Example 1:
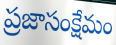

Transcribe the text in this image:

ప్రజాసంక్షేమం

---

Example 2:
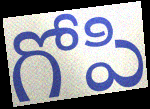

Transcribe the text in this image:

గోపి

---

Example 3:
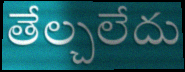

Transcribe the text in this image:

తేల్చలేదు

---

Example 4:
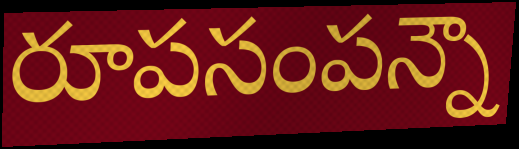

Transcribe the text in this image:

రూపసంపన్నౌ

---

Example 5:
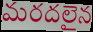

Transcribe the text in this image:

మరదలైన